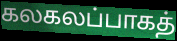
கலகலப்பாகத்